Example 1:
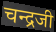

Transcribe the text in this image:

चन्द्रजी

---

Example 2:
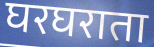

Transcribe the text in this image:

घरघराता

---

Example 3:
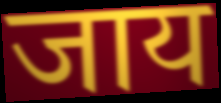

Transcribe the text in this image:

जाय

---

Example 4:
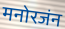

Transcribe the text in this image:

मनोरजंन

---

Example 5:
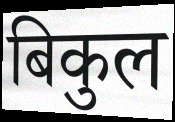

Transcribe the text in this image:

बिकुल